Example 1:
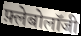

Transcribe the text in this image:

फ़्लेबोलॉजी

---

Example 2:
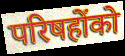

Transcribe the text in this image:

परिषहोंको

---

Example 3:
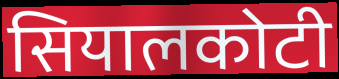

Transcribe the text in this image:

सियालकोटी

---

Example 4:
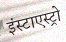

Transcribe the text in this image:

इंस्टाएस्ट्रो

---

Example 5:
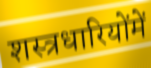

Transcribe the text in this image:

शस्त्रधारियोंमें